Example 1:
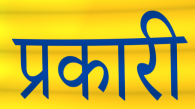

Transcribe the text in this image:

प्रकारी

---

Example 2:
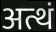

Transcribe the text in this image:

अत्थं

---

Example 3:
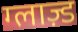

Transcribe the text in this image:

ग्लाज़्ड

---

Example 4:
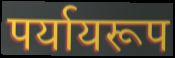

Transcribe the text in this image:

पर्यायरूप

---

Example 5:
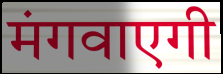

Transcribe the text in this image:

मंगवाएगी